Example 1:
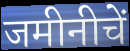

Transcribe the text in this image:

जमीनीचें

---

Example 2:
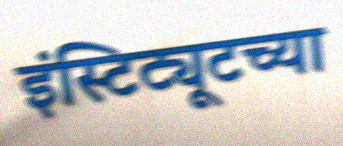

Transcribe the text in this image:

इंस्टिट्यूटच्या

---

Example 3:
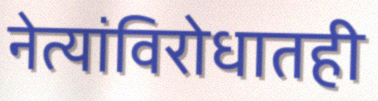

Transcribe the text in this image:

नेत्यांविरोधातही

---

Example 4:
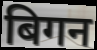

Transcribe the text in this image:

बिगन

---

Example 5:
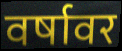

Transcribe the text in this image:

वर्षावर